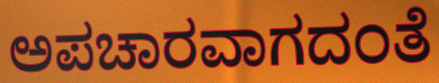
ಅಪಚಾರವಾಗದಂತೆ